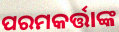
ପରମକର୍ତ୍ତାଙ୍କ